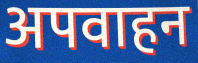
अपवाहन